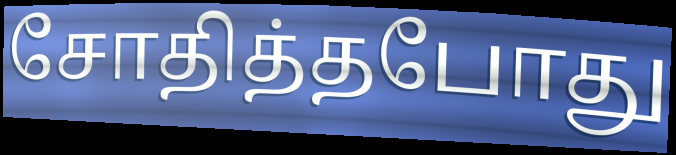
சோதித்தபோது